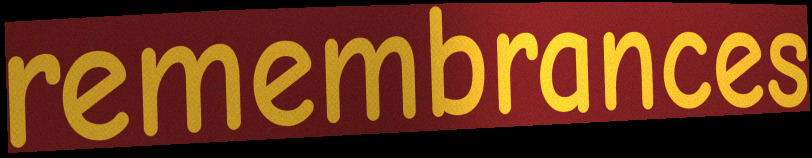
remembrances